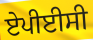
ਏਪੀਈਸੀ